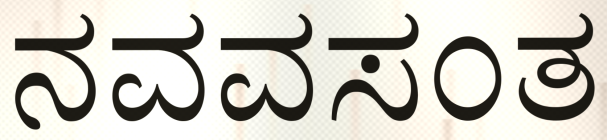
ನವವಸಂತ